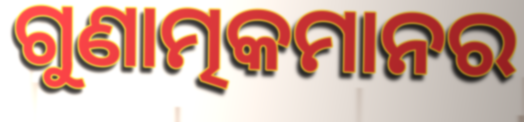
ଗୁଣାତ୍ମକମାନର